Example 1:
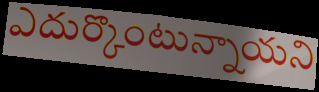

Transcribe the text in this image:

ఎదుర్కొంటున్నాయని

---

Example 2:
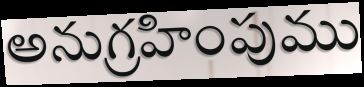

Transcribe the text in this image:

అనుగ్రహింపుము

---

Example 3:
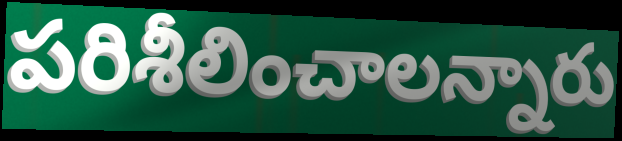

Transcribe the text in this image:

పరిశీలించాలన్నారు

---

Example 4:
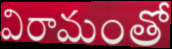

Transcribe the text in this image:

విరామంతో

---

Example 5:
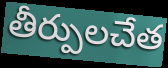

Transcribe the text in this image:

తీర్పులచేత